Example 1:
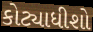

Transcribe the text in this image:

કોટ્યાધીશો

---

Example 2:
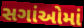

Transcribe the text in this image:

સગાંઓમાં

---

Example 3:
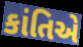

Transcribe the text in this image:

કાંતિએ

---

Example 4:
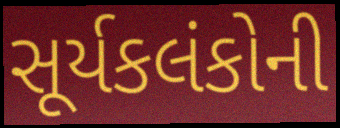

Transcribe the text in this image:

સૂર્યકલંકોની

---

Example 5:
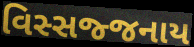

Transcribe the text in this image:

વિસ્સજ્જનાય